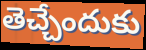
తెచ్చేందుకు